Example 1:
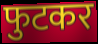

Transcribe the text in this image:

फुटकर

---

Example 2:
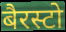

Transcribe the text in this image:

बैरस्टो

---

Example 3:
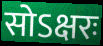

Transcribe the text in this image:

सोऽक्षरः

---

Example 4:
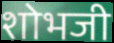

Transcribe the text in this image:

शोभजी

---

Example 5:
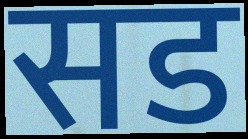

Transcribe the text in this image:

सड